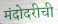
मंदोदरीची